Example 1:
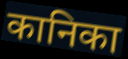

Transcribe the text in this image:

कानिका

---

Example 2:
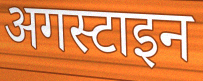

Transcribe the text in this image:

अगस्टाइन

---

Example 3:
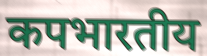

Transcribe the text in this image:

कपभारतीय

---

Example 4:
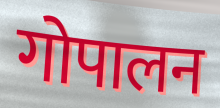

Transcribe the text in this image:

गोपालन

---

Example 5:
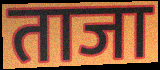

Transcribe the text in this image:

ताजा